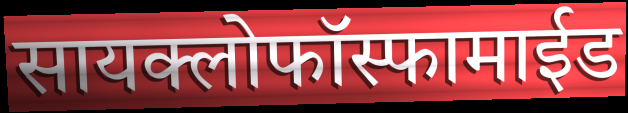
सायक्लोफॉस्फामाईड